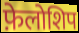
फ़ेलोशिप